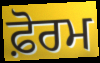
ਫ਼ੋਰਮ